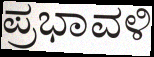
ಪ್ರಭಾವಳಿ